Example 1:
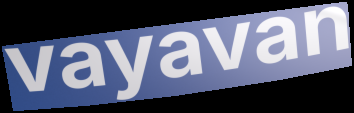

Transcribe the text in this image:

vayavan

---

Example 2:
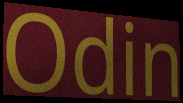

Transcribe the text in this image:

Odin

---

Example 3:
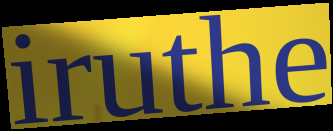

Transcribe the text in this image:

iruthe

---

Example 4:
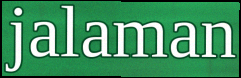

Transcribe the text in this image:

jalaman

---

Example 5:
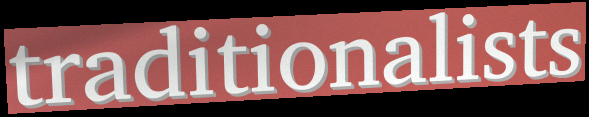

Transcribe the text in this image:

traditionalists